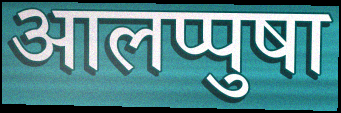
आलप्पुषा